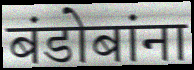
बंडोबांना